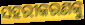
ସହରୀକରଣକୁ